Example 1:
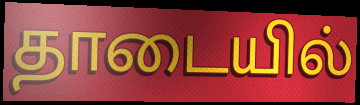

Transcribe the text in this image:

தாடையில்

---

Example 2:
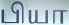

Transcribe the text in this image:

பியா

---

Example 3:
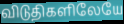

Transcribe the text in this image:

விடுதிகளிலேயே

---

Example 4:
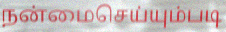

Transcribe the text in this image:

நன்மைசெய்யும்படி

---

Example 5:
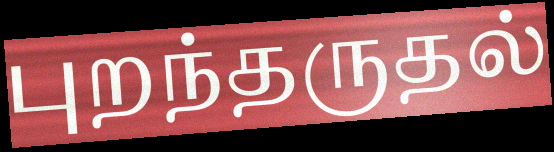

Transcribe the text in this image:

புறந்தருதல்